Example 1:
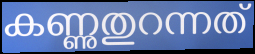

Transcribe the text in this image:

കണ്ണുതുറന്നത്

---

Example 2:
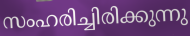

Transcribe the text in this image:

സംഹരിച്ചിരിക്കുന്നു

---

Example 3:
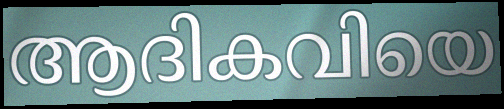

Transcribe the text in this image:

ആദികവിയെ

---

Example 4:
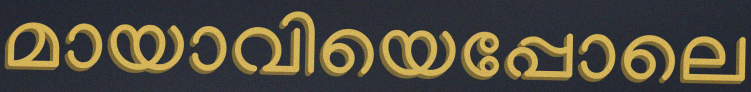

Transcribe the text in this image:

മായാവിയെപ്പോലെ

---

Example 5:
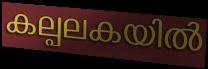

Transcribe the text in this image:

കല്പലകയിൽ